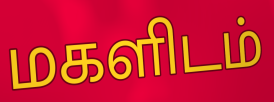
மகளிடம்